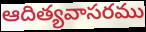
ఆదిత్యవాసరము